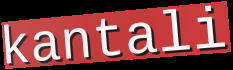
kantali